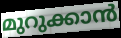
മുറുക്കാൻ